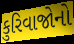
કુરિવાજોનો